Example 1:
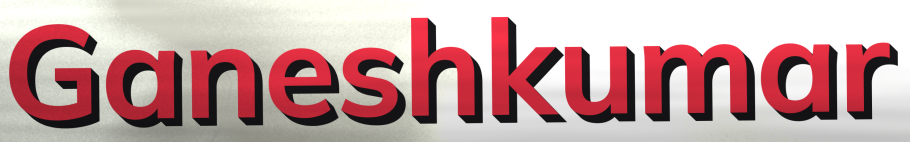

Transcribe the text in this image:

Ganeshkumar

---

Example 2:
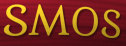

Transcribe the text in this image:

SMOS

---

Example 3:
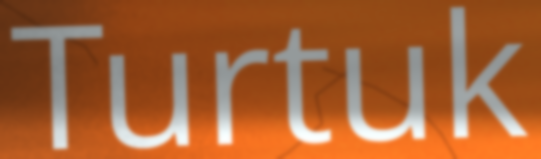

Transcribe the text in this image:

Turtuk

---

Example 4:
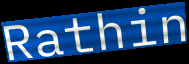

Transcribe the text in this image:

Rathin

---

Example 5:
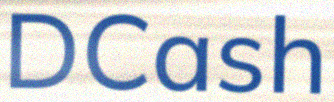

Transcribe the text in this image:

DCash